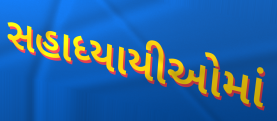
સહાધ્યાયીઓમાં